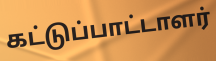
கட்டுப்பாட்டாளர்